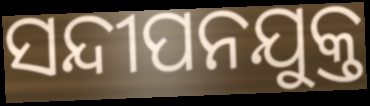
ସନ୍ଦୀପନଯୁକ୍ତ